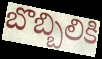
బొబ్బిలికి